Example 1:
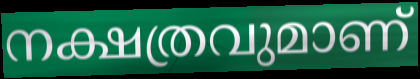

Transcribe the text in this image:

നക്ഷത്രവുമാണ്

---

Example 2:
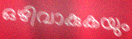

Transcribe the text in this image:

ഒഴിവാകുകയും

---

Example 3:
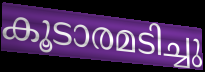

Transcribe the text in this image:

കൂടാരമടിച്ചു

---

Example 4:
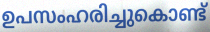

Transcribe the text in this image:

ഉപസംഹരിച്ചുകൊണ്ട്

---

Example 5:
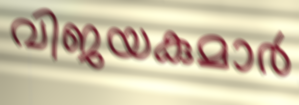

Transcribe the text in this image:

വിജയകുമാർ